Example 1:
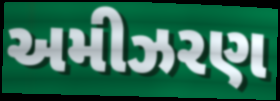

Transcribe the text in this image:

અમીઝરણ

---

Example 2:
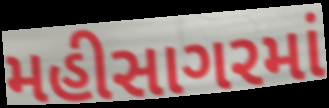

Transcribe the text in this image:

મહીસાગરમાં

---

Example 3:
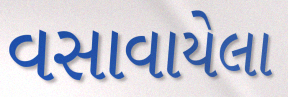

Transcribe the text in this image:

વસાવાયેલા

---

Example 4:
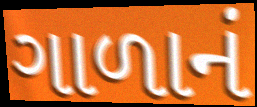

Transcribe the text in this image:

ગાળાનં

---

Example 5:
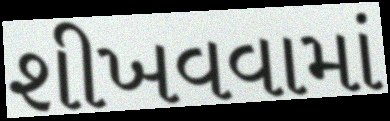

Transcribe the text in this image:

શીખવવામાં